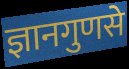
ज्ञानगुणसे